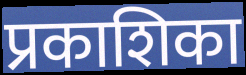
प्रकाशिका